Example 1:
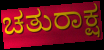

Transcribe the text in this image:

ಚತುರಾಕ್ಷ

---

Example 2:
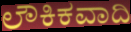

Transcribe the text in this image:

ಲೌಕಿಕವಾದಿ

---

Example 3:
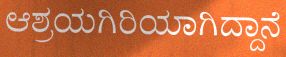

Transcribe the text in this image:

ಆಶ್ರಯಗಿರಿಯಾಗಿದ್ದಾನೆ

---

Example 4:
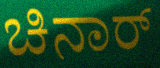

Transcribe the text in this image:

ಚಿನಾರ್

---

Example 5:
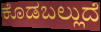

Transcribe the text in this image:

ಕೊಡಬಲ್ಲುದೆ